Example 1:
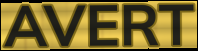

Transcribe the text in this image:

AVERT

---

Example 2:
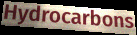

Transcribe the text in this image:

Hydrocarbons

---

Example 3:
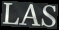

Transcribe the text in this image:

LAS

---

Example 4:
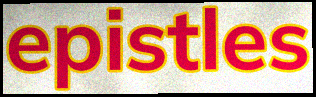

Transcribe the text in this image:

epistles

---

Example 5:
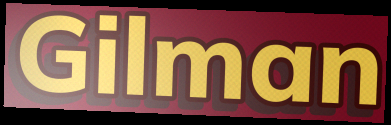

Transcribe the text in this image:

Gilman